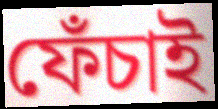
ফেঁচাই